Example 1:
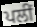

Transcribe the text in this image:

ਪਲੀਂ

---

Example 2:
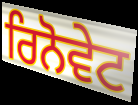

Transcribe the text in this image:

ਰਿਨੋਵੇਟ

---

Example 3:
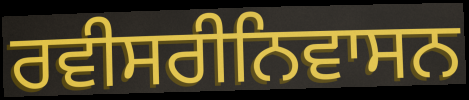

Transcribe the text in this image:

ਰਵੀਸਰੀਨਿਵਾਸਨ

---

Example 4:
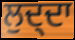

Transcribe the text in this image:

ਲੁਦ੍ਦਾ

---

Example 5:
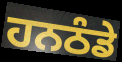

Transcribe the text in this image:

ਹਨਠੰਡੇ